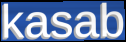
kasab